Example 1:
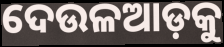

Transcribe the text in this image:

ଦେଉଳଆଡ଼କୁ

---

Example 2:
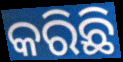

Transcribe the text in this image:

କରିଛି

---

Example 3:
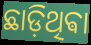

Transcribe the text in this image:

ଛାଡ଼ିଥିଵା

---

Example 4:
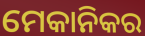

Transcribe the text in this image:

ମେକାନିକର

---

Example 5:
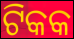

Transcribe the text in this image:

ଟିକକ